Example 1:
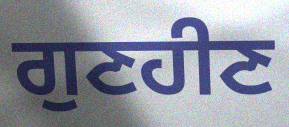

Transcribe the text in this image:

ਗੁਣਹੀਣ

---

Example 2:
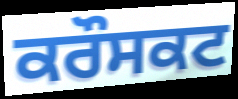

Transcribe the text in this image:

ਕਰੌਸਕਟ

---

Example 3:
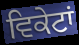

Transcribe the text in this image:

ਵਿਕੇਟਾਂ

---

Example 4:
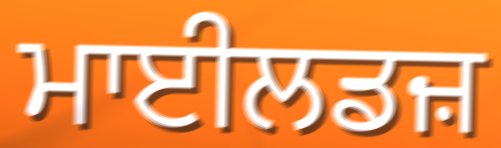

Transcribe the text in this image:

ਮਾਈਲਡਜ਼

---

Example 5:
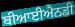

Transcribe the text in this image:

ਬੀਆਈਐਨਡੀ